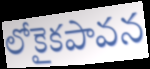
లోకైకపావన